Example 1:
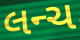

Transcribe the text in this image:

લન્ચ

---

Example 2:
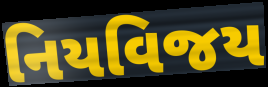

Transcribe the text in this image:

નિયવિજય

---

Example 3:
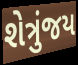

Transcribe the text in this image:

શેત્રુંજય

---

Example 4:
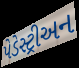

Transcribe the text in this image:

પેડેસ્ટ્રીઅન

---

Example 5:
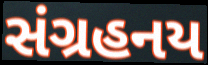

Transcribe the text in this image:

સંગ્રહનય